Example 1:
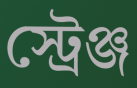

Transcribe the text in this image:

স্ট্রেঞ্জ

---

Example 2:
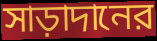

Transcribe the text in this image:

সাড়াদানের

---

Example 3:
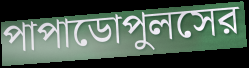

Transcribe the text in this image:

পাপাডোপুলসের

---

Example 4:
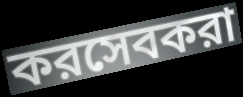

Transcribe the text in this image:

করসেবকরা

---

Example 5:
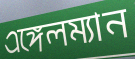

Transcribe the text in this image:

এঙ্গেলম্যান